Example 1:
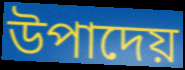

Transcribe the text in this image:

উপাদেয়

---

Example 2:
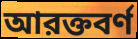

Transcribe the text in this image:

আরক্তবর্ণ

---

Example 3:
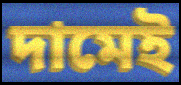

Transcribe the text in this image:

দামেই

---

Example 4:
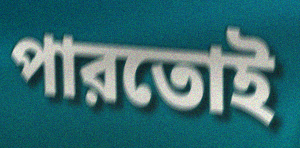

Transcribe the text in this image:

পারতোই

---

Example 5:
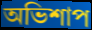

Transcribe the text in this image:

অভিশাপ